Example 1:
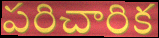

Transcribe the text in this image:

పరిచారిక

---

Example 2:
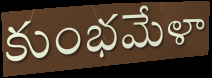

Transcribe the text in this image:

కుంభమేళా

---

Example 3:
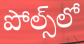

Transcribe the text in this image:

పోల్స్‌లో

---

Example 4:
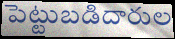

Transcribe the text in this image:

పెట్టుబడిదారుల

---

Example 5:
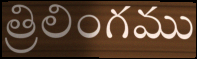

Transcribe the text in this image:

త్రిలింగము